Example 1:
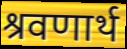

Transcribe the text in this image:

श्रवणार्थ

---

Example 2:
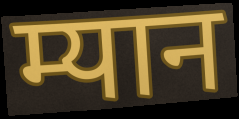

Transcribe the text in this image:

म्यान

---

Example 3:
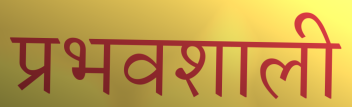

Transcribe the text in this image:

प्रभवशाली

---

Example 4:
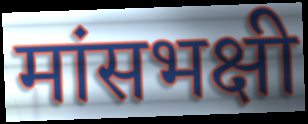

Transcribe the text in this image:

मांसभक्षी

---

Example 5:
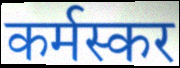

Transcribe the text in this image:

कर्मस्कर